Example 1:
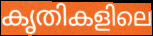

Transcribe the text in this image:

കൃതികളിലെ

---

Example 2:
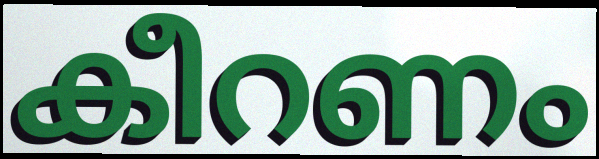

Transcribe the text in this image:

കീറണം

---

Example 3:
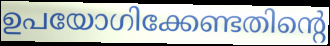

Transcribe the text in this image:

ഉപയോഗിക്കേണ്ടതിന്റെ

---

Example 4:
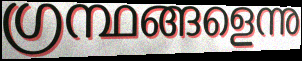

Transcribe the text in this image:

ഗ്രന്ഥങ്ങളെന്നു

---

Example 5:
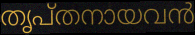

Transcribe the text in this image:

തൃപ്തനായവൻ